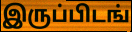
இருப்பிடங்